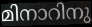
മിനാറിനു